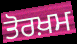
ਤੋਰਖ਼ਮ